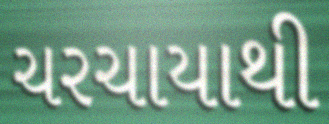
ચરચાયાથી